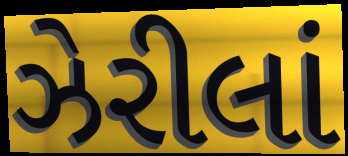
ઝેરીલાં